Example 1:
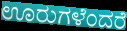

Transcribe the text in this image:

ಊರುಗಳೆಂದರೆ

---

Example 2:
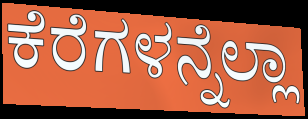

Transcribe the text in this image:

ಕೆರೆಗಳನ್ನೆಲ್ಲಾ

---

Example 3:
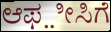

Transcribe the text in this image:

ಆಫ಼ೀಸಿಗೆ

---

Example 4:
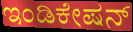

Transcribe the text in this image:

ಇಂಡಿಕೇಷನ್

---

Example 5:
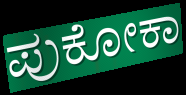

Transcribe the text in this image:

ಪುಕೋಕಾ